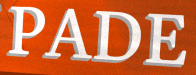
PADE